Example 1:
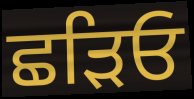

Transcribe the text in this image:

ਛੜਿਓ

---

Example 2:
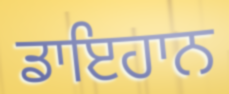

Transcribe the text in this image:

ਡਾਇਹਾਨ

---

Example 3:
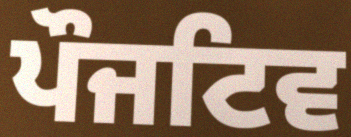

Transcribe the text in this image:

ਪੌਜਟਿਵ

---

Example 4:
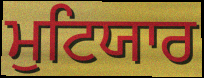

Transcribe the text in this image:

ਮੁਟਿਯਾਰ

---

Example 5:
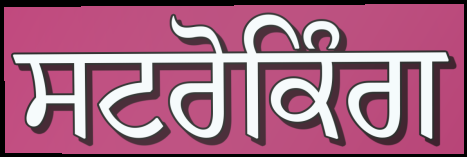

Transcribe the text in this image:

ਸਟਰੋਕਿੰਗ